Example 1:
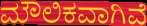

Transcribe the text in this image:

ಮೌಲಿಕವಾಗಿವೆ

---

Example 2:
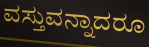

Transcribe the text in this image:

ವಸ್ತುವನ್ನಾದರೂ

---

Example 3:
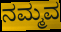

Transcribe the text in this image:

ನಮ್ಮವ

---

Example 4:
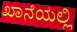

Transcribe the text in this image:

ಖಾನೆಯಲ್ಲಿ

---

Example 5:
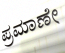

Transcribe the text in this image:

ಪ್ರಮಾಣೇ